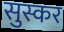
सुस्कर